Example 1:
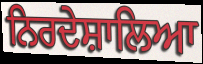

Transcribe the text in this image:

ਨਿਰਦੇਸ਼ਾਲਿਆ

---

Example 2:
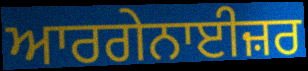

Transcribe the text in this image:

ਆਰਗੇਨਾਈਜ਼ਰ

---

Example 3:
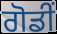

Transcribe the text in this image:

ਗੋਡੀਂ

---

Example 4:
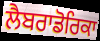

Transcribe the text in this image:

ਲੈਬਰਾਡੋਰਿਕਾ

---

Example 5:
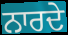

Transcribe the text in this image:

ਨਾਰਦੇ